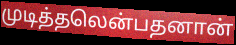
முடித்தலென்பதனான்